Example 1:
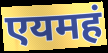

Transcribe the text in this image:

एयमहं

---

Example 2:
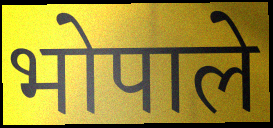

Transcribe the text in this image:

भोपाले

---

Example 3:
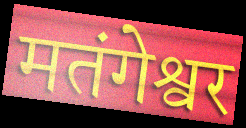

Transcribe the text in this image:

मतंगेश्वर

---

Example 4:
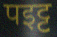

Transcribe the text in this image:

पइट्ट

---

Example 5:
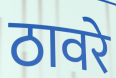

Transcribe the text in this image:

ठावरे